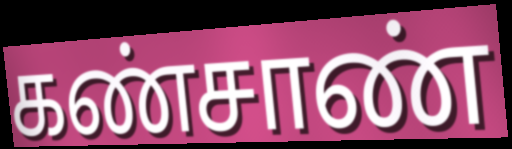
கண்சாண்